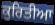
ਕੁਰਿਤੀਆ